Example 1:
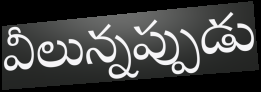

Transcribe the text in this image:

వీలున్నప్పుడు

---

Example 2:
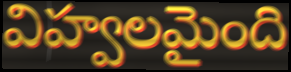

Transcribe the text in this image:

విహ్వలమైంది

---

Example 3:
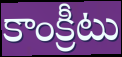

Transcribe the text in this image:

కాంక్రీటు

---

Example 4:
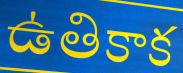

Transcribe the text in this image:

ఉతికాక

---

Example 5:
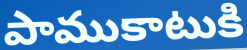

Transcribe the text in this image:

పాముకాటుకి